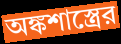
অঙ্কশাস্ত্রের